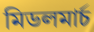
মিডলমাৰ্চ